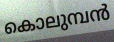
കൊലുമ്പൻ